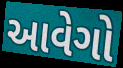
આવેગો